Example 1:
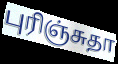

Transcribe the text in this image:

புரிஞ்சுதா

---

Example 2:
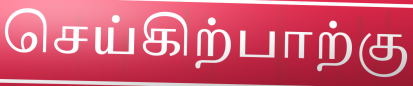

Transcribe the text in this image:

செய்கிற்பாற்கு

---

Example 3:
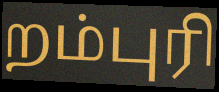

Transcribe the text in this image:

றம்புரி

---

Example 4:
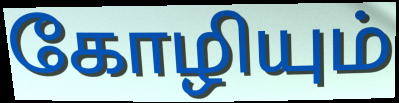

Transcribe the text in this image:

கோழியும்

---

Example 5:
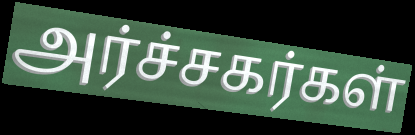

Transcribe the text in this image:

அர்ச்சகர்கள்